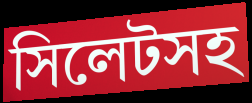
সিলেটসহ